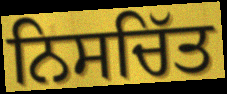
ਨਿਸਚਿੱਤ